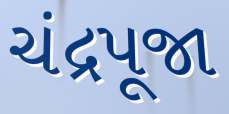
ચંદ્રપૂજા